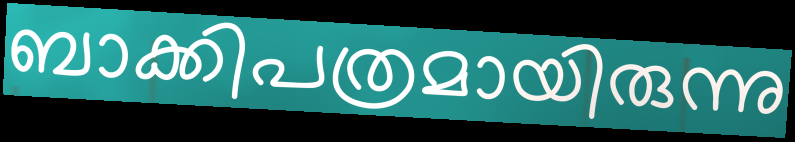
ബാക്കിപത്രമായിരുന്നു